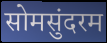
सोमसुंदरम